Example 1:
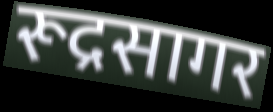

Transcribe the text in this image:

रूद्रसागर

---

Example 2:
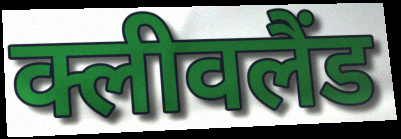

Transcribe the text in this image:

क्लीवलैंड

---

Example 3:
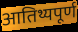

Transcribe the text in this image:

आतिथ्यपूर्ण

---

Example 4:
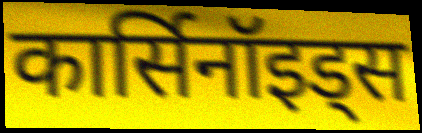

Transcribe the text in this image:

कार्सिनॉइड्स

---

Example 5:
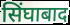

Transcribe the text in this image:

सिंघाबाद